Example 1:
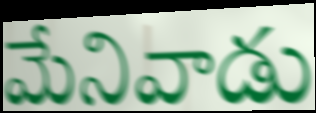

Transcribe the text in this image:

మేనివాడు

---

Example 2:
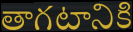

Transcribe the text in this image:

తాగటానికి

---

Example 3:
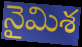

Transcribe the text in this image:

నైమిశ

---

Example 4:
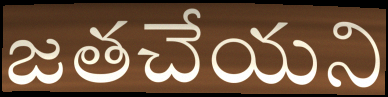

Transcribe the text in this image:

జతచేయని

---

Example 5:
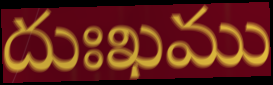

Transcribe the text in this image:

దుఃఖము